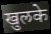
खुलके